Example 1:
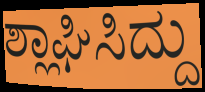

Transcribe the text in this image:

ಶ್ಲಾಘಿಸಿದ್ದು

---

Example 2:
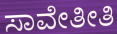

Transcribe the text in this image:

ಸಾವೇತೀತಿ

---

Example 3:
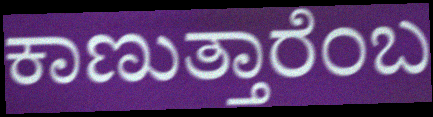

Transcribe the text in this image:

ಕಾಣುತ್ತಾರೆಂಬ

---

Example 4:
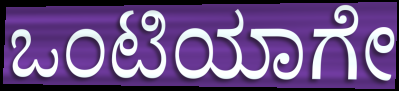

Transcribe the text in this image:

ಒಂಟಿಯಾಗೇ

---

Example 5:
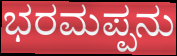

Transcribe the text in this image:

ಭರಮಪ್ಪನು